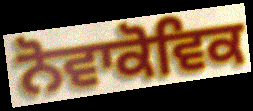
ਨੋਵਾਕੋਵਿਕ